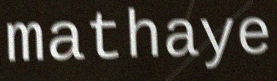
mathaye